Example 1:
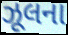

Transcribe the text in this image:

ઝૂલના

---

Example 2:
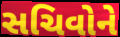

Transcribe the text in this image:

સચિવોને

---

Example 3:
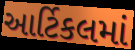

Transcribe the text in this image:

આર્ટિકલમાં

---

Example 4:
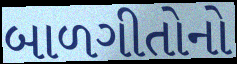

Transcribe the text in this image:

બાળગીતોનો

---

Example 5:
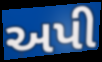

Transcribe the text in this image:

અપી